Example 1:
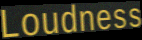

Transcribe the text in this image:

Loudness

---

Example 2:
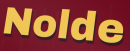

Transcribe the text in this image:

Nolde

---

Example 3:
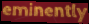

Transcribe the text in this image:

eminently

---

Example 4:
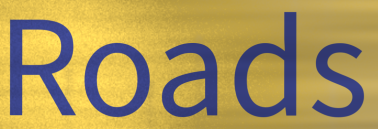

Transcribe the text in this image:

Roads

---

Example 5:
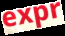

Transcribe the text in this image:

expr